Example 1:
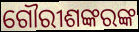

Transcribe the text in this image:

ଗୌରୀଶଙ୍କରଙ୍କ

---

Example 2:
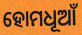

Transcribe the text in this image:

ହୋମଧୂଆଁ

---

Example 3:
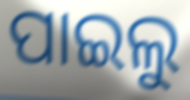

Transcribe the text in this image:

ପାଇଲୁ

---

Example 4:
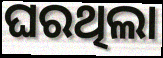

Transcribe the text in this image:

ଘରଥିଲା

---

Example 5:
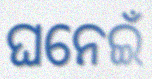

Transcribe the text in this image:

ଘନେଇଁ